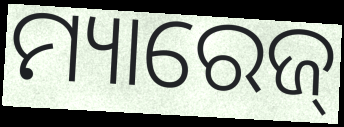
ମ୍ୟାରେଜ୍